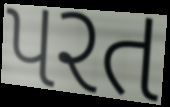
પરત